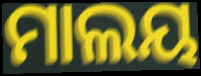
ମାଲୟ